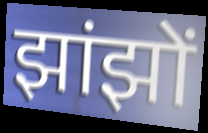
झांझों